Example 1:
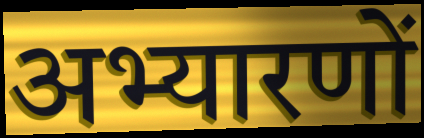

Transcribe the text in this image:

अभ्यारणों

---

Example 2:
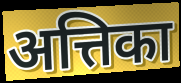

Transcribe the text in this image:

अत्तिका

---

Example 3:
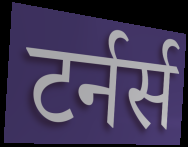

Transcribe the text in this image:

टर्नर्स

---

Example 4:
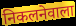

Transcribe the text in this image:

निकलनेवाला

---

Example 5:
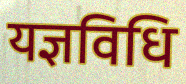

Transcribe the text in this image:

यज्ञविधि